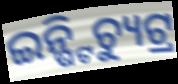
ଇନ୍ଷ୍ଟିଚ୍ୟୁଟ୍ର